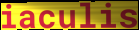
iaculis